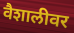
वैशालीवर